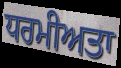
ਧਰਮੀਅਤਾ